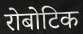
रोबोटिक